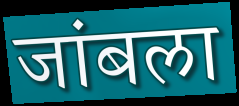
जांबला